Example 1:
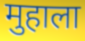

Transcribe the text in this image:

मुहाला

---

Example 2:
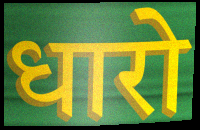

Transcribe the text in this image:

धारो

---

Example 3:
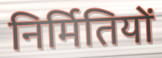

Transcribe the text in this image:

निर्मितियों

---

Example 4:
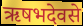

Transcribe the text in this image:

ऋषभदेवसे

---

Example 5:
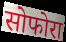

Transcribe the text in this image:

सोफोरा